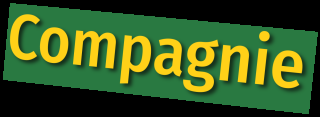
Compagnie